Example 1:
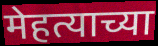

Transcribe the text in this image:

मेहत्याच्या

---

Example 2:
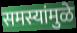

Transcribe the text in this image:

समस्यांमुळे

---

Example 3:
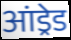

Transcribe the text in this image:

आंड्रेड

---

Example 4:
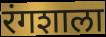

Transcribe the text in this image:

रंगशाला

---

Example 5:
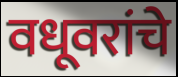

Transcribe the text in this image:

वधूवरांचे